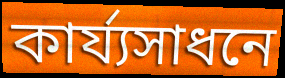
কার্য্যসাধনে